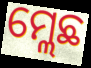
ମ୍ଲେଛ